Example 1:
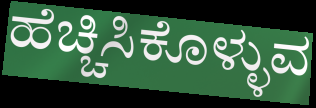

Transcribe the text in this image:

ಹೆಚ್ಚಿಸಿಕೊಳ್ಳುವ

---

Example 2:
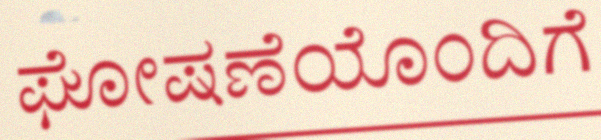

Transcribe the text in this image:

ಘೋಷಣೆಯೊಂದಿಗೆ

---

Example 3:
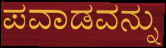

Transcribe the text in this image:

ಪವಾಡವನ್ನು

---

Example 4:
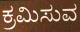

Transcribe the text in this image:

ಕ್ರಮಿಸುವ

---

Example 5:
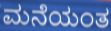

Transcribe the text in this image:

ಮನೆಯಂತ